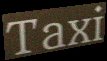
Taxi